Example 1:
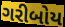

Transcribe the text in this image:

ગરીબોય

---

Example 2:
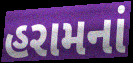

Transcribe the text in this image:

હરામનાં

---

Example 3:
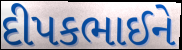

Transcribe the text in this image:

દીપકભાઈને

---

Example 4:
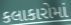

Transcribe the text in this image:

કલાકારોમાં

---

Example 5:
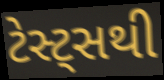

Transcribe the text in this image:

ટેસ્ટ્સથી